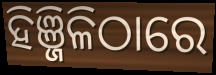
ହିଞ୍ଜିଳିଠାରେ